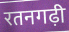
रतनगढ़ी